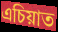
এচিয়াত